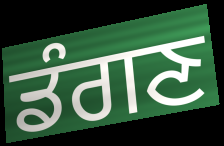
ਡੰਗਣ